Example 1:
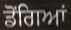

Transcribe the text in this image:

ਡੋਂਗਿਆਂ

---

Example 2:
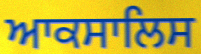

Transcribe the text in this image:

ਆਕਸਾਲਿਸ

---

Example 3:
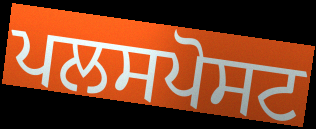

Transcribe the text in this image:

ਪਲਸਪੋਸਟ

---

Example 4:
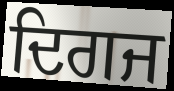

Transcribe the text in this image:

ਦਿਗਜ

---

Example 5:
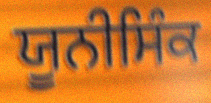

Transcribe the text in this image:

ਯੂਨੀਸਿੰਕ